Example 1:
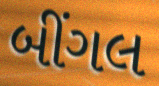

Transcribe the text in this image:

બીંગલ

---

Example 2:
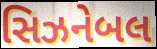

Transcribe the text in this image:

સિઝનેબલ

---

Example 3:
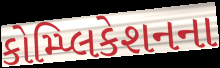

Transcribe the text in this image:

કોમ્પ્લિકેશનના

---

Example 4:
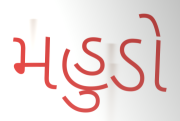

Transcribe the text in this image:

મહુડો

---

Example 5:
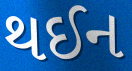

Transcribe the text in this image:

થઈન